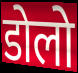
डोलो